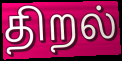
திறல்